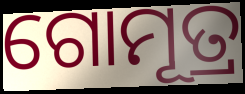
ଗୋମୂତ୍ର